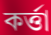
কৰ্ত্তা